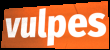
vulpes